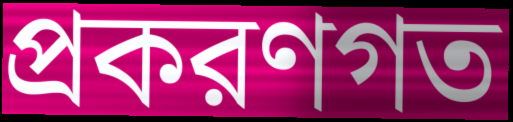
প্রকরণগত